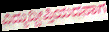
ವಿದ್ಯುದ್ದೀಪ್ತಿಯದನಾಗ